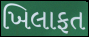
ખિલાફત